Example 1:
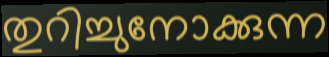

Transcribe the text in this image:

തുറിച്ചുനോക്കുന്ന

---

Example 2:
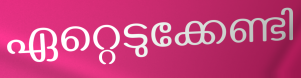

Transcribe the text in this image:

ഏറ്റെടുക്കേണ്ടി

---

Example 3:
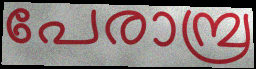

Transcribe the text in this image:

പേരാമ്പ്ര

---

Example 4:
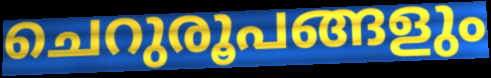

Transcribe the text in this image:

ചെറുരൂപങ്ങളും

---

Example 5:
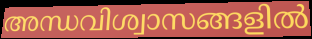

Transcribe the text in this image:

അന്ധവിശ്വാസങ്ങളിൽ